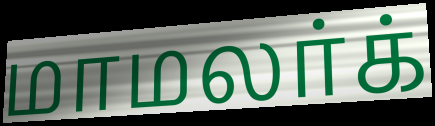
மாமலர்க்